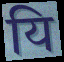
यि